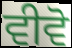
ਵੀਵੋ